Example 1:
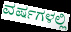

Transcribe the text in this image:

ವರ್ಷಗಳಲ್ಲಿ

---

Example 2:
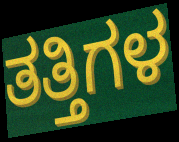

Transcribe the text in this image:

ತತ್ತಿಗಳ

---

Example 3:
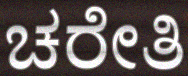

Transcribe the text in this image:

ಚರೇತಿ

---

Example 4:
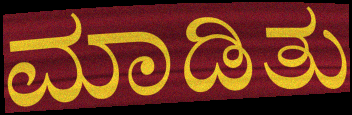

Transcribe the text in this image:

ಮಾಡಿತು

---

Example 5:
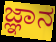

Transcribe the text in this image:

ಜ್ಞಾನ